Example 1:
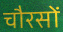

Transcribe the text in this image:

चौरसों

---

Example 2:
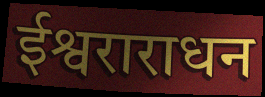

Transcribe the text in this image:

ईश्वराराधन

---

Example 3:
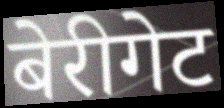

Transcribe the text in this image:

बेरीगेट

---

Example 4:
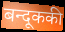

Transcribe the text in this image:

बन्दूककी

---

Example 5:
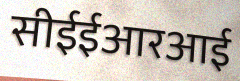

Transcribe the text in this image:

सीईईआरआई